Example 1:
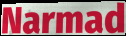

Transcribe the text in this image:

Narmad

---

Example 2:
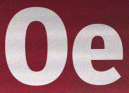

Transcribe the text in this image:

Oe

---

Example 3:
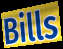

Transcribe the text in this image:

Bills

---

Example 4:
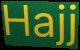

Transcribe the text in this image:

Hajj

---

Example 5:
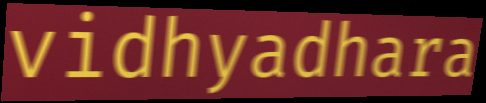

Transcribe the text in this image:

vidhyadhara